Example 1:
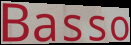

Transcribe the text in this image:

Basso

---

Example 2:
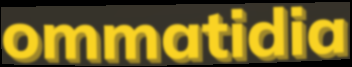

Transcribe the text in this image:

ommatidia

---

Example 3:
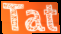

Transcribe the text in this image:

Tat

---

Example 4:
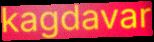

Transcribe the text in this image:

kagdavar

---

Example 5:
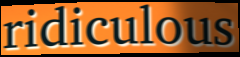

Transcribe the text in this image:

ridiculous